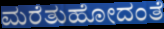
ಮರೆತುಹೋದಂತೆ